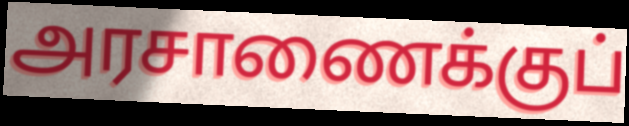
அரசாணைக்குப்